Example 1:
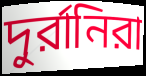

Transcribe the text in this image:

দুর্রানিরা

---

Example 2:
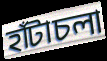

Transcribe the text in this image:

হাঁটাচলা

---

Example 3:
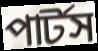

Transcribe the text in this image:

পার্টস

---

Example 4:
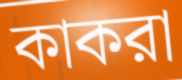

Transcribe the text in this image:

কাকরা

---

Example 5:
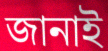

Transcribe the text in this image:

জানাই